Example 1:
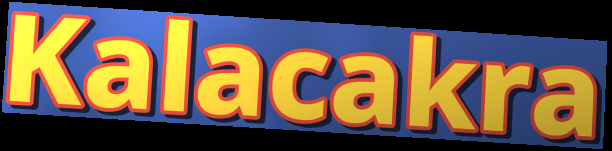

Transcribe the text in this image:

Kalacakra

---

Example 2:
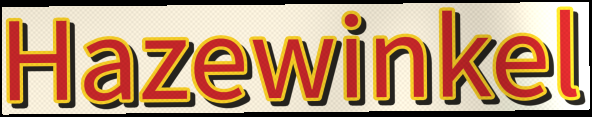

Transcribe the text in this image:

Hazewinkel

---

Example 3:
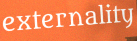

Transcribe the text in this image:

externality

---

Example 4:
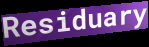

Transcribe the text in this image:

Residuary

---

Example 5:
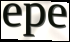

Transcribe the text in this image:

epe